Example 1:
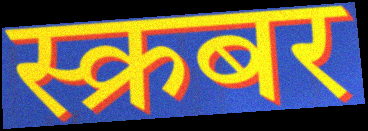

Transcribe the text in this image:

स्‍क्रबर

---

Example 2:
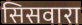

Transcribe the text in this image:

सिसवारा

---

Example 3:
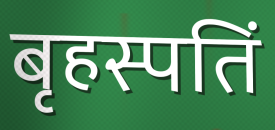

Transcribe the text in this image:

बृहस्पतिं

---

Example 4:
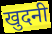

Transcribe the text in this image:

खुदनी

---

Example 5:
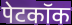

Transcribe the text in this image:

पेटकॉक